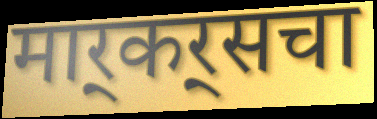
मार्कर्सचा